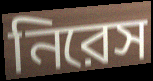
নিরেস